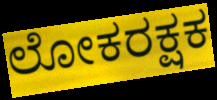
ಲೋಕರಕ್ಷಕ